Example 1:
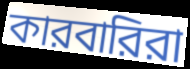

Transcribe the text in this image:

কারবারিরা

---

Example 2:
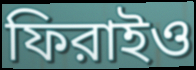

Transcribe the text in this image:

ফিরাইও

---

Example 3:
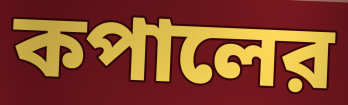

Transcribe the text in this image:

কপালের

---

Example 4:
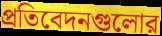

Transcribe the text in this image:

প্রতিবেদনগুলোর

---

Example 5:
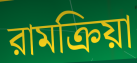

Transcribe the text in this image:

রামক্রিয়া